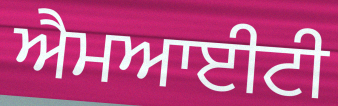
ਐਮਆਈਟੀ